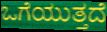
ಒಗೆಯುತ್ತದೆ